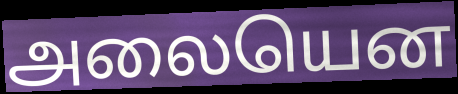
அலையென